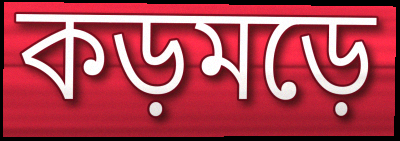
কড়মড়ে